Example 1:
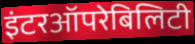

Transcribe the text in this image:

इंटरऑपरेबिलिटी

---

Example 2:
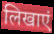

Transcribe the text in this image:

लिखाएं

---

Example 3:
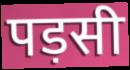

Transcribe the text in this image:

पड़सी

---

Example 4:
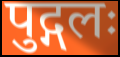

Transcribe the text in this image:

पुद्गलः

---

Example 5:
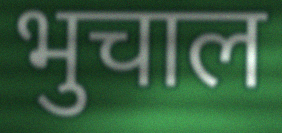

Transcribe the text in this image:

भुचाल